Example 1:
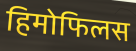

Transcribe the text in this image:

हिमोफिलस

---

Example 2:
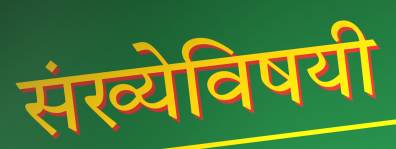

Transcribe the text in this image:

संख्येविषयी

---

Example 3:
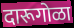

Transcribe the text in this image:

दारूगोळा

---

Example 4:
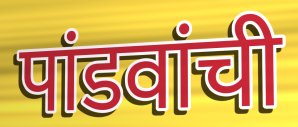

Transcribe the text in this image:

पांडवांची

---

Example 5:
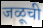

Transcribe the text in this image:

जळूची